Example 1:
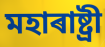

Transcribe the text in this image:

মহাৰাষ্ট্ৰী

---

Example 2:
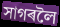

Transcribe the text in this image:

সাগৰলৈ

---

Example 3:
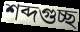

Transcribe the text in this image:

শব্দগুচ্ছ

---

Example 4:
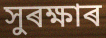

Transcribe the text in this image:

সুৰক্ষাৰ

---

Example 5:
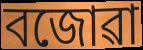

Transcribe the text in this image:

বজোৱা